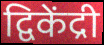
द्विकेंद्री